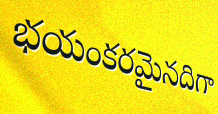
భయంకరమైనదిగా